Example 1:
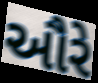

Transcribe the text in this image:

ઔરે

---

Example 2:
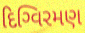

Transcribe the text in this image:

દિગ્વિરમણ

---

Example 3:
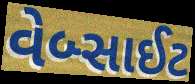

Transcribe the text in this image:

વેબ્સાઈટ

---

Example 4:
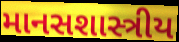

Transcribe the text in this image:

માનસશાસ્ત્રીય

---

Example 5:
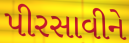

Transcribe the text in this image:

પીરસાવીને